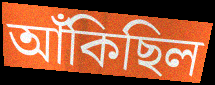
আঁকিছিল